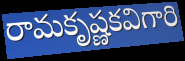
రామకృష్ణకవిగారి